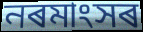
নৰমাংসৰ